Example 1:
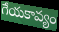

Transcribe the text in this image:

గేయకావ్యం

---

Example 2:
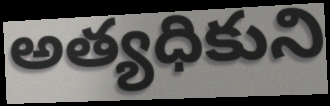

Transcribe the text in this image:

అత్యధికుని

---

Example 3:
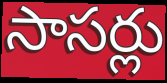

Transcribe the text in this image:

సాసర్లు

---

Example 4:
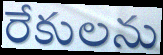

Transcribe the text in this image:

రేకులను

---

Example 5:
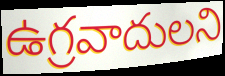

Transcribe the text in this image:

ఉగ్రవాదులని